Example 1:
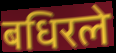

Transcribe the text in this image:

बधिरले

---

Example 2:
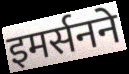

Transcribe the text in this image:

इमर्सनने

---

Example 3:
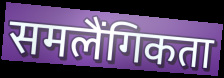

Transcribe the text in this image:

समलैंगिकता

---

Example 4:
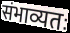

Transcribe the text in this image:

संभाव्यतः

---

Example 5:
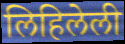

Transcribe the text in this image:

लिहिलेली